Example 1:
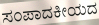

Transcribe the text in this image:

ಸಂಪಾದಕೀಯದ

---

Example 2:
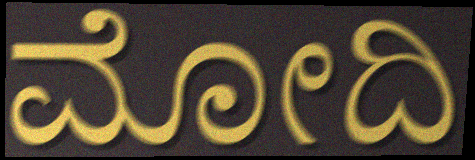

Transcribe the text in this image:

ಮೋದಿ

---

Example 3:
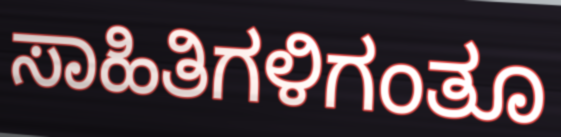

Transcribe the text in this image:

ಸಾಹಿತಿಗಳಿಗಂತೂ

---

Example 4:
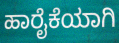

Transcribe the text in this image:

ಹಾರೈಕೆಯಾಗಿ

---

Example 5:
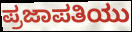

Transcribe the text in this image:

ಪ್ರಜಾಪತಿಯು